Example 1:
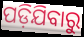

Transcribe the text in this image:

ପଡ଼ିଯିବାରୁ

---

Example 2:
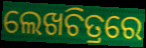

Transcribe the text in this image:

ଲେଖଚିତ୍ରରେ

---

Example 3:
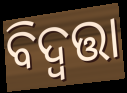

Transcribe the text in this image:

ବିଦ୍ୱତ୍ତା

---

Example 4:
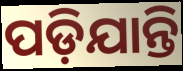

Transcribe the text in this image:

ପଡ଼ିଯାନ୍ତି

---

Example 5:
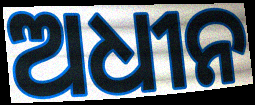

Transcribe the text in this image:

ଅଧୀନ